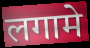
लगामे